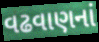
વઢવાણનાં